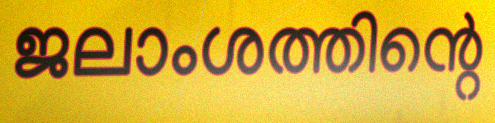
ജലാംശത്തിന്റെ